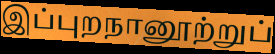
இப்புறநானூற்றுப்